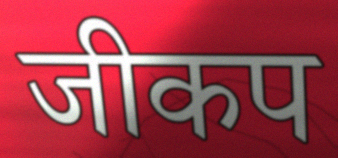
जीकप